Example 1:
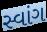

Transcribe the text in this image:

સ્વાંગ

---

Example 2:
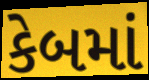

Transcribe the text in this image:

કેબમાં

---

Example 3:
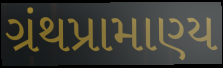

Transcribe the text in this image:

ગ્રંથપ્રામાણ્ય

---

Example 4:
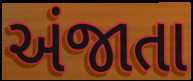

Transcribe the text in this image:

અંજાતા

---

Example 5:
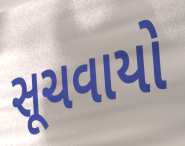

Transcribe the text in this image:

સૂચવાયો